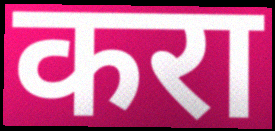
करा